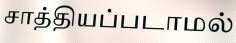
சாத்தியப்படாமல்